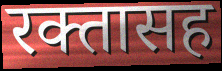
रक्तासह